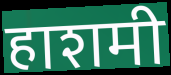
हाशमी